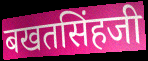
बखतसिंहजी